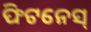
ଫିଟନେସ୍